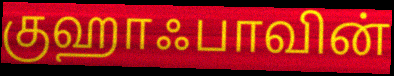
குஹாஃபாவின்